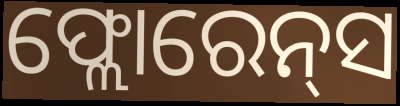
ଫ୍ଲୋରେନ୍‌ସ